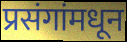
प्रसंगांमधून